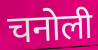
चनोली